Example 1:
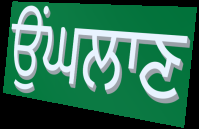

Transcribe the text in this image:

ਉਂਘਲਾਣ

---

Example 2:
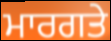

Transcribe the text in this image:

ਮਾਰਗਤੇ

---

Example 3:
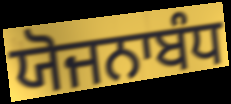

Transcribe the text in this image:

ਯੋਜਨਾਬੰਧ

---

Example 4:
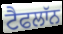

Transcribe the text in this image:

ਟੈਫਲਾੱਨ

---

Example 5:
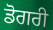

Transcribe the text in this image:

ਡੋਗਰੀ